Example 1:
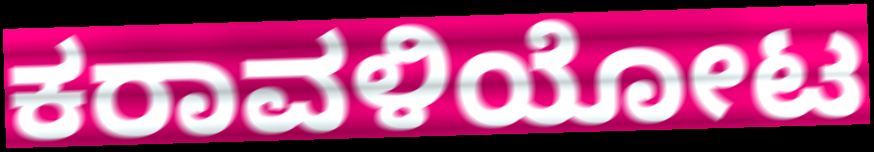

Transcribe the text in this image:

ಕರಾವಳಿಯೋಟ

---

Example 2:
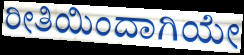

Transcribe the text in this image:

ರೀತಿಯಿಂದಾಗಿಯೇ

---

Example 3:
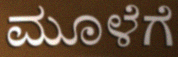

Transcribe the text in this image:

ಮೂಳೆಗೆ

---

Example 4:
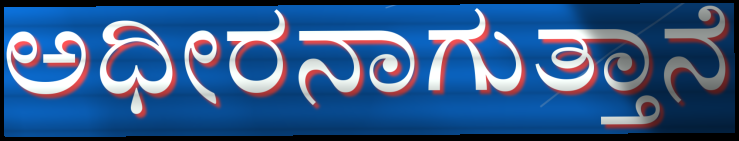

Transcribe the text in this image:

ಅಧೀರನಾಗುತ್ತಾನೆ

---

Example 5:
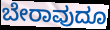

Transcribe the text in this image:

ಬೇರಾವುದೂ